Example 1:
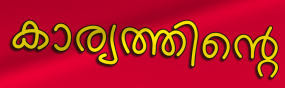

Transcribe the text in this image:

കാര്യത്തിന്റെ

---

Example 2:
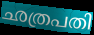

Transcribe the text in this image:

ഛത്രപതി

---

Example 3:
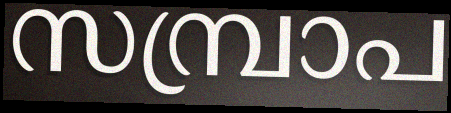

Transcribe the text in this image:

സമ്പ്രാപ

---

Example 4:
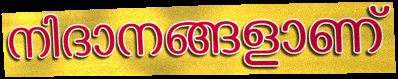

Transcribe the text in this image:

നിദാനങ്ങളാണ്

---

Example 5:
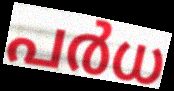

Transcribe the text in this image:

പർധ